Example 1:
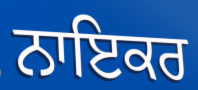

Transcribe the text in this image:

ਨਾਇਕਰ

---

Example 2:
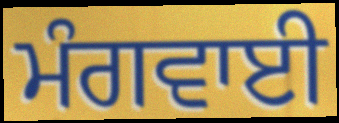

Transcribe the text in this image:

ਮੰਗਵਾਈ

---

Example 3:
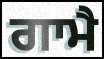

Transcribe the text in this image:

ਗਾਮੈ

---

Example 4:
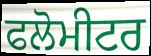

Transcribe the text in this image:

ਫਲੋਮੀਟਰ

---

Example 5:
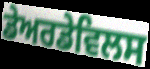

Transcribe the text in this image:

ਡੇਅਰਡੇਵਿਲਸ